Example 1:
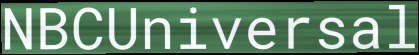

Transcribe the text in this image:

NBCUniversal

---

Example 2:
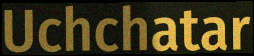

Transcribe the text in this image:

Uchchatar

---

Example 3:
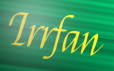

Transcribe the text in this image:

Irrfan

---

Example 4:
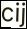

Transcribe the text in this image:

cij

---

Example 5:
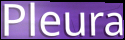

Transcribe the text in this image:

Pleura